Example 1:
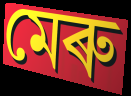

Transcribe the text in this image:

মেৰু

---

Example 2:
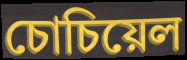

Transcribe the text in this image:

চোচিয়েল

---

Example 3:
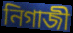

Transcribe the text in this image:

নিগাজী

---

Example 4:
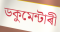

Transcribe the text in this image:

ডকুমেন্টাৰী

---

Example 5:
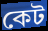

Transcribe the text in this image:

কেট